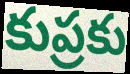
కుప్రకు